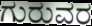
ಗುರುವರ